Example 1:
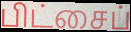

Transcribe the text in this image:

பிட்சைப்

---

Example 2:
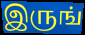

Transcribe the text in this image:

இருங்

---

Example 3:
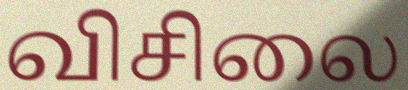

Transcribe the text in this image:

விசிலை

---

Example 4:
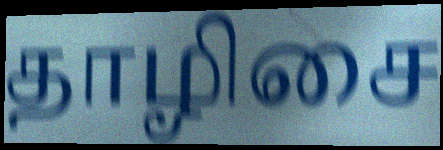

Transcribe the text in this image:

தாழிசை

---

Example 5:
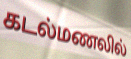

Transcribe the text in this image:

கடல்மணலில்